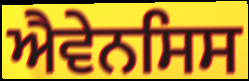
ਐਵੇਨਸਿਸ